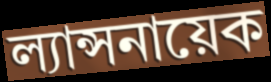
ল্যান্সনায়েক